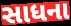
સાધના